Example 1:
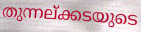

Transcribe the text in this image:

തുന്നല്ക്കടയുടെ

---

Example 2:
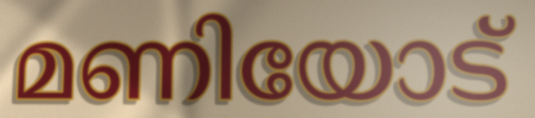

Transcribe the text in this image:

മണിയോട്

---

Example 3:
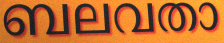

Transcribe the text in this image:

ബലവതാ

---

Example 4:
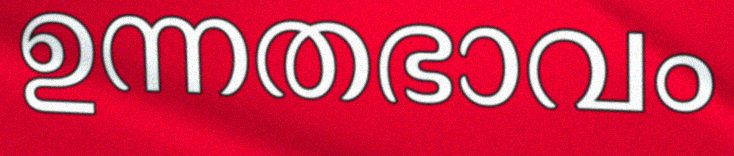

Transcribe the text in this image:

ഉന്നതഭാവം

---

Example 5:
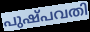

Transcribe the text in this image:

പുഷ്പവതി